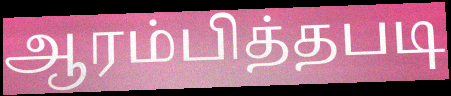
ஆரம்பித்தபடி